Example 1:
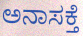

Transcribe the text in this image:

ಅನಾಸಕ್ತೆ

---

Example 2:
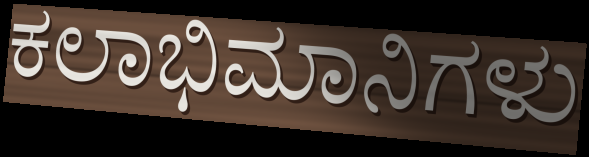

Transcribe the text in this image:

ಕಲಾಭಿಮಾನಿಗಳು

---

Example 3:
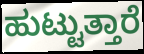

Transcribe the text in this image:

ಹುಟ್ಟುತ್ತಾರೆ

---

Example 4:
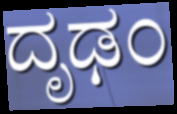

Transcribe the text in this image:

ದೃಢಂ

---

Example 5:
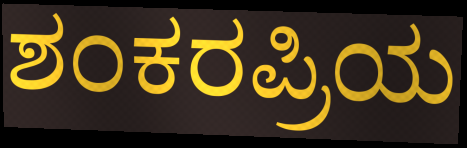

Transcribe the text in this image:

ಶಂಕರಪ್ರಿಯ